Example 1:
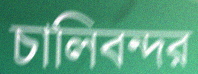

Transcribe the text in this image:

চালিবন্দর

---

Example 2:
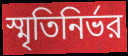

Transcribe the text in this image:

স্মৃতিনির্ভর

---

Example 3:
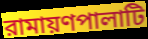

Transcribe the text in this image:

রামায়ণপালাটি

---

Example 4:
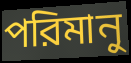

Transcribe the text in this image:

পরিমানু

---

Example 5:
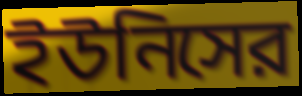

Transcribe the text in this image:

ইউনিসের